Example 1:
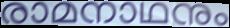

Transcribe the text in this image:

രാമനാഥനും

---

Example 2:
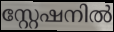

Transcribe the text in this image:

സ്റ്റേഷനിൽ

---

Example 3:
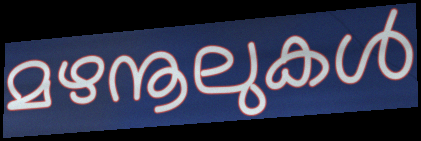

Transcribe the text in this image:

മഴനൂലുകൾ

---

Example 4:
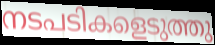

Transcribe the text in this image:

നടപടികളെടുത്തു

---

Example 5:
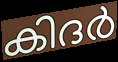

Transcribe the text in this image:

കിദർ